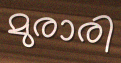
മുരാരി